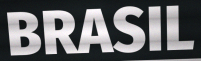
BRASIL